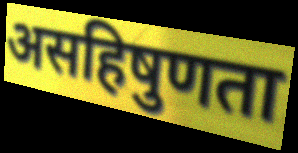
असहिषुणता